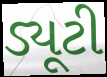
ડ્યૂટી